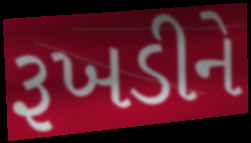
રૂખડીને